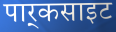
पार्कसाइट